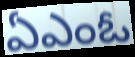
ఏఎంఓ